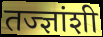
तज्ज्ञांशी